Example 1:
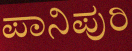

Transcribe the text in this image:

ಪಾನಿಪುರಿ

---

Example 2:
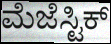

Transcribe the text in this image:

ಮೆಜೆಸ್ಟಿಕ್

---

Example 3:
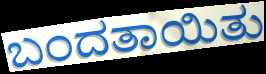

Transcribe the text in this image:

ಬಂದತಾಯಿತು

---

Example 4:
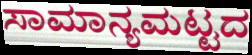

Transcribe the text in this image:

ಸಾಮಾನ್ಯಮಟ್ಟದ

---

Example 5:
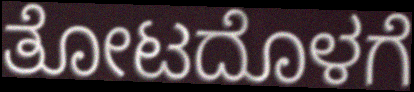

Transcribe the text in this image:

ತೋಟದೊಳಗೆ